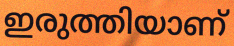
ഇരുത്തിയാണ്